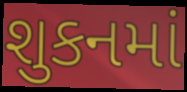
શુકનમાં